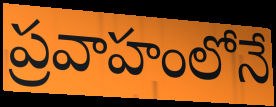
ప్రవాహంలోనే